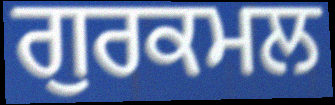
ਗੁਰਕਮਲ